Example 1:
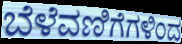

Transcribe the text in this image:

ಬೆಳೆವಣಿಗೆಗಳಿಂದ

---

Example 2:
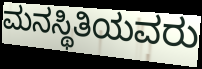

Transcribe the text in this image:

ಮನಸ್ಥಿತಿಯವರು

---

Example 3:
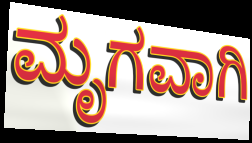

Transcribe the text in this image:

ಮೃಗವಾಗಿ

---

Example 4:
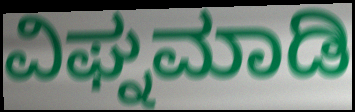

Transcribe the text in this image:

ವಿಘ್ನಮಾಡಿ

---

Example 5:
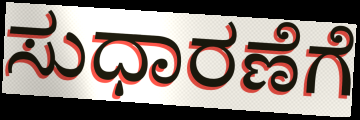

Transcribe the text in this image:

ಸುಧಾರಣೆಗೆ